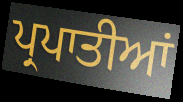
ਪ੍ਰਪਾਤੀਆਂ